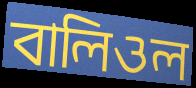
বালিওল